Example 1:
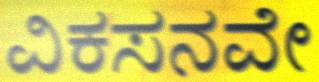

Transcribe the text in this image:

ವಿಕಸನವೇ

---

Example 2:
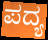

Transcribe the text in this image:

ಪದ್ಯ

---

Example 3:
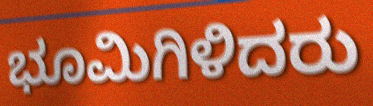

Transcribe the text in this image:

ಭೂಮಿಗಿಳಿದರು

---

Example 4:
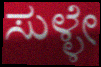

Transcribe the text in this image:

ಸುಳ್ಳೇ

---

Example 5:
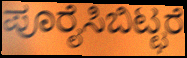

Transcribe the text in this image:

ಪೂರೈಸಿಬಿಟ್ಟರೆ